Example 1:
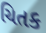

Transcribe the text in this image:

ચિતક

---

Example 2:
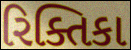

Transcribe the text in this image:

રિક્તિકા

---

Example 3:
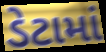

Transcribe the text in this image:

ડેટામાં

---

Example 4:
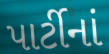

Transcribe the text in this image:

પાર્ટીનાં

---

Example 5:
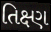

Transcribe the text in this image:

તિક્ષ્ણ